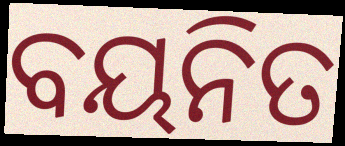
ବୟନିତ